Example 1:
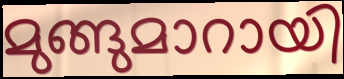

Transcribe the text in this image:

മുങ്ങുമാറായി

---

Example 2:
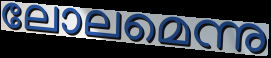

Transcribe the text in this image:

ലോലമെന്നു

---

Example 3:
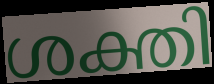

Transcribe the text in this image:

ശക്തി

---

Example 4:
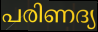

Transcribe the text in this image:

പരിണദ്യ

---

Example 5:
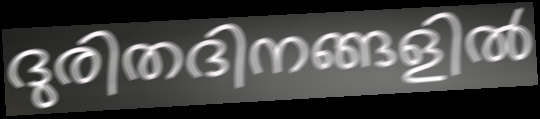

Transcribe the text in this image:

ദുരിതദിനങ്ങളിൽ